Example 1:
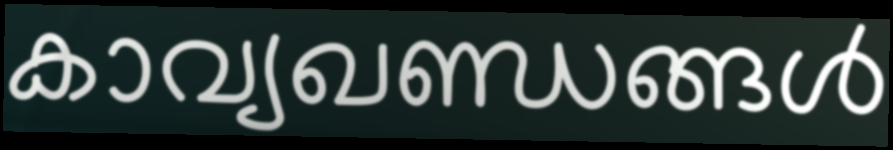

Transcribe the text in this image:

കാവ്യഖണ്ഡങ്ങൾ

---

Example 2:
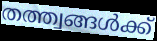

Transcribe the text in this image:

തത്ത്വങ്ങൾക്ക്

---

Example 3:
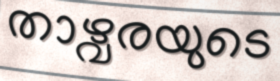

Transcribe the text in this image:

താഴ്വരയുടെ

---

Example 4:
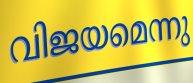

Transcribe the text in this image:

വിജയമെന്നു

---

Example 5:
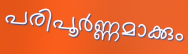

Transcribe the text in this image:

പരിപൂർണ്ണമാക്കും